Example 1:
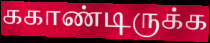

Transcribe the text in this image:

ககாண்டிருக்க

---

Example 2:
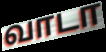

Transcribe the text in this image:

வாடா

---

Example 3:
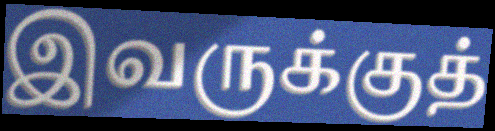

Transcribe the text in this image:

இவருக்குத்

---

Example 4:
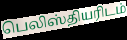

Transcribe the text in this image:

பெலிஸ்தியரிடம்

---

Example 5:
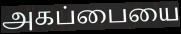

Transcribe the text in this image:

அகப்பையை